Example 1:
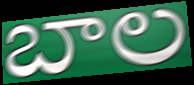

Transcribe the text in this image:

బాల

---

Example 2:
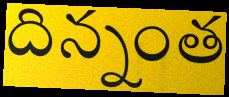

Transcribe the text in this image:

దిన్నంత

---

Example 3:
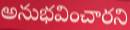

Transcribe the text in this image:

అనుభవించారని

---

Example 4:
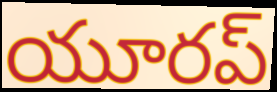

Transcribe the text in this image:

యూరప్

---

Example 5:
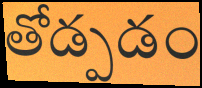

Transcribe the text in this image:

తోడ్పడం